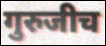
गुरुजीच